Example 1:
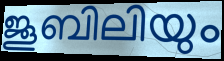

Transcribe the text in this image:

ജൂബിലിയും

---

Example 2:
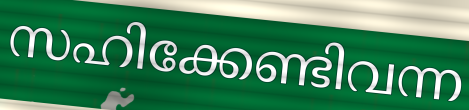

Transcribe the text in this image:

സഹിക്കേണ്ടിവന്ന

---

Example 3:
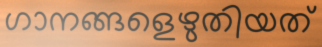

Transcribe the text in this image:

ഗാനങ്ങളെഴുതിയത്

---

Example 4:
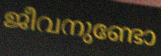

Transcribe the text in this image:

ജീവനുണ്ടോ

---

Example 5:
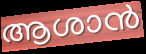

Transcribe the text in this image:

ആശാൻ